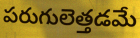
పరుగులెత్తడమే